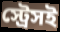
স্ট্রেসই